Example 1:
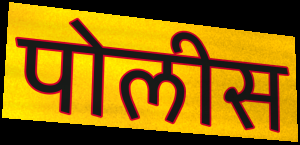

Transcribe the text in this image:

पोलीस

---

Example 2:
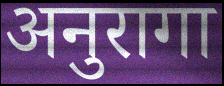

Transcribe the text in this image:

अनुरागा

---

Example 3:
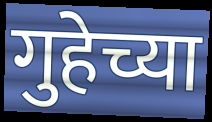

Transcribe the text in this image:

गुहेच्या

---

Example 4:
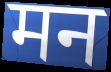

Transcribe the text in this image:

मन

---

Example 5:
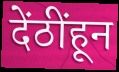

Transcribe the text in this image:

देंठींहून